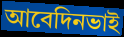
আবেদিনভাই